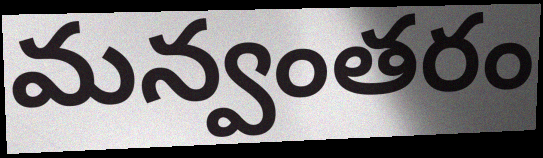
మన్వంతరం